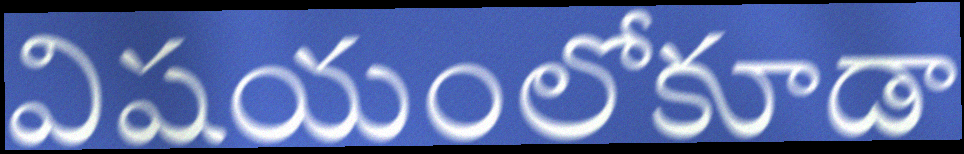
విషయంలోకూడా